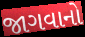
જાગવાનો